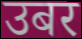
उबर